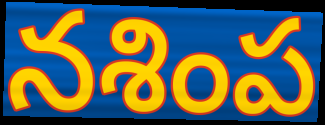
నశింప